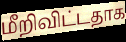
மீறிவிட்டதாக